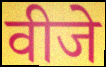
वीजे